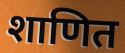
शाणित